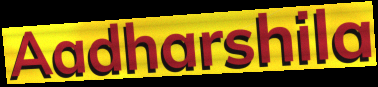
Aadharshila